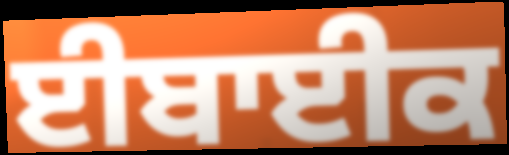
ਈਬਾਈਕ